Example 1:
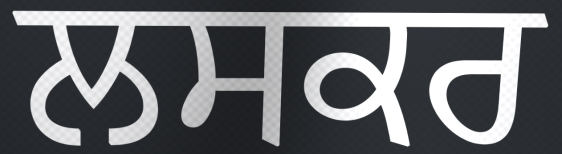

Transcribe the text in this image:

ਲਸਕਰ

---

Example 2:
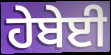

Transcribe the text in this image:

ਹੇਬੇਈ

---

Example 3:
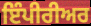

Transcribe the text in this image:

ਇੰਪੀਰੀਅਰ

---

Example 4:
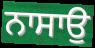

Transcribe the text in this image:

ਨਾਸਾਉ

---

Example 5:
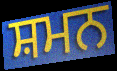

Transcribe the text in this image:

ਸ਼ਮਨ